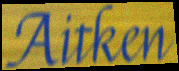
Aitken